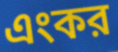
এংকর